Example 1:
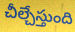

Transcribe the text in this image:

చీల్చేస్తుంది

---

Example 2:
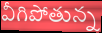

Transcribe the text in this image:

వీగిపోతున్న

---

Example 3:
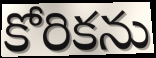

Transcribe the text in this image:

కోరికను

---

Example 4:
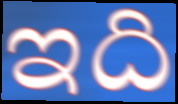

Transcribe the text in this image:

ఇది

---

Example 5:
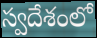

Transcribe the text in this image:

స్వదేశంలో